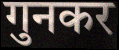
गुनकर